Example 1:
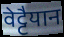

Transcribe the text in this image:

वेट्टैयान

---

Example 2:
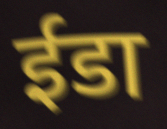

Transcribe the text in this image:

ईडा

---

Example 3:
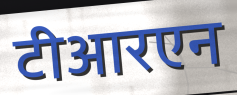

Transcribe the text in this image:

टीआरएन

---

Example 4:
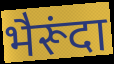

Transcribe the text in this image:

भैरूंदा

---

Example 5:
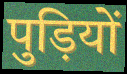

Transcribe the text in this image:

पुड़ियों